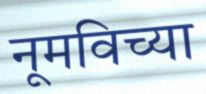
नूमविच्या